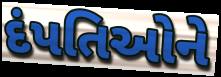
દંપતિઓને